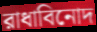
রাধাবিনোদ